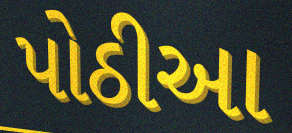
પોઠીઆ